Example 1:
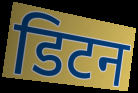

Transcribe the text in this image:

डिटन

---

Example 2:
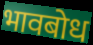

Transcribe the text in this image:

भावबोध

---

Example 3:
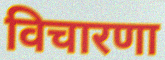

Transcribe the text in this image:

विचारणा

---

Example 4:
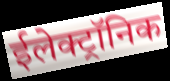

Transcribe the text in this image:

ईलेक्ट्रॉनिक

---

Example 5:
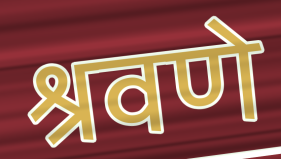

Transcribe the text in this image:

श्रवणे